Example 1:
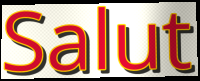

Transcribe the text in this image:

Salut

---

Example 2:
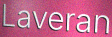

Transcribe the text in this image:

Laveran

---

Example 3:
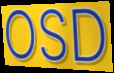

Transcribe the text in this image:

OSD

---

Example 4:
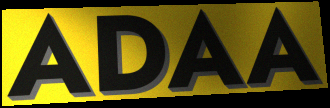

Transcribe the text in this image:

ADAA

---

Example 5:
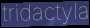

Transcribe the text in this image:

tridactyla